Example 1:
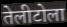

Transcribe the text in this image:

तेलीटोला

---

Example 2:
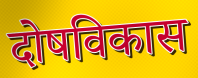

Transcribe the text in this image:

दोषविकास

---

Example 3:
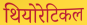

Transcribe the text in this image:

थियोरेटिकल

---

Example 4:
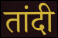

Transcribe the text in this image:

तांदी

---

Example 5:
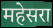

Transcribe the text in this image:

महेसरा